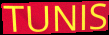
TUNIS